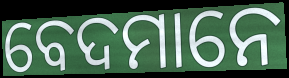
ବେଦମାନେ